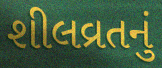
શીલવ્રતનું